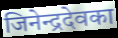
जिनेन्द्रदेवका